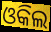
ଓକିଲ